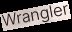
Wrangler